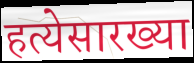
हत्येसारख्या